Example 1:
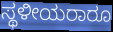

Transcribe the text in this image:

ಸ್ಥಳೀಯರಾರೂ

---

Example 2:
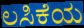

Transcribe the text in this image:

ಲಸಿಕೆಯ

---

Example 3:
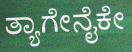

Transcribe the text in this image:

ತ್ಯಾಗೇನೈಕೇ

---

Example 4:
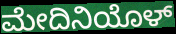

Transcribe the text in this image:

ಮೇದಿನಿಯೊಳ್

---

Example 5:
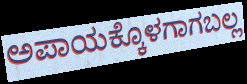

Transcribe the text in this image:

ಅಪಾಯಕ್ಕೊಳಗಾಗಬಲ್ಲ